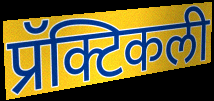
प्रॅक्टिकली